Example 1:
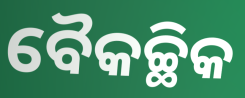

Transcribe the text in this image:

ବୈକଚ୍ଛିକ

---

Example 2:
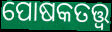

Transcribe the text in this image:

ପୋଷକତତ୍ତ୍ବ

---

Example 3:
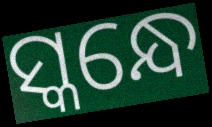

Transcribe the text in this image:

ସ୍କନ୍ଧେ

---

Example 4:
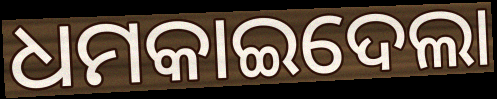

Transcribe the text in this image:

ଧମକାଇଦେଲା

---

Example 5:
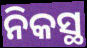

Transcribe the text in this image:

ନିକସ୍ଥ